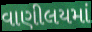
વાણીલયમાં